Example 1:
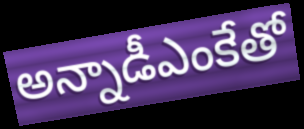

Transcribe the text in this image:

అన్నాడీఎంకేతో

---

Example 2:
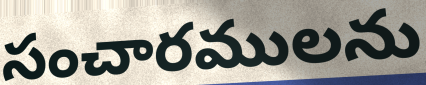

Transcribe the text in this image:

సంచారములను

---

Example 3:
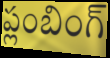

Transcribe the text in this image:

ప్లంబింగ్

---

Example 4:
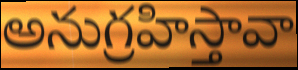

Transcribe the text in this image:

అనుగ్రహిస్తావా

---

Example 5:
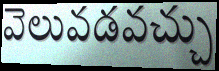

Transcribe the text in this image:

వెలువడవచ్చు